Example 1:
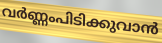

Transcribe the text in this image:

വർണ്ണംപിടിക്കുവാൻ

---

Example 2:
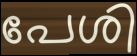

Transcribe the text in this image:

പേശി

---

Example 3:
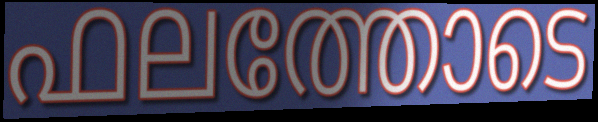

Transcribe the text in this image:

ഫലത്തോടെ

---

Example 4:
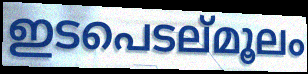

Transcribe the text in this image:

ഇടപെടല്മൂലം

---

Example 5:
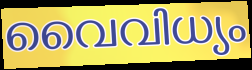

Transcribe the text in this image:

വൈവിധ്യം